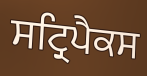
ਸਟ੍ਰਿਪੈਕਸ